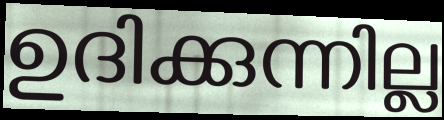
ഉദിക്കുന്നില്ല